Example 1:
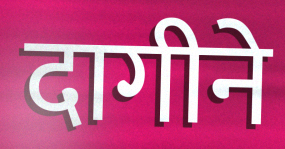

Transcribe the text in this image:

दागीने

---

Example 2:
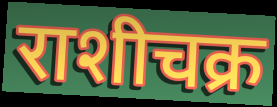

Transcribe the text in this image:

राशीचक्र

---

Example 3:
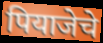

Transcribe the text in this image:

पियाजेचे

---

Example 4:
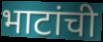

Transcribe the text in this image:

भाटांची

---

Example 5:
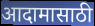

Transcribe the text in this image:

आदामासाठी